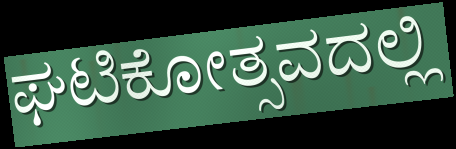
ಘಟಿಕೋತ್ಸವದಲ್ಲಿ